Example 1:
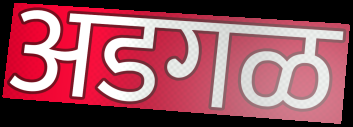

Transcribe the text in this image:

अडगळ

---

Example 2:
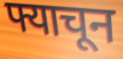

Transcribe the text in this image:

फ्याचून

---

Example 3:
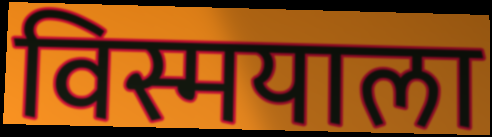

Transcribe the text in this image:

विस्मयाला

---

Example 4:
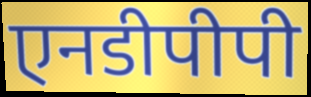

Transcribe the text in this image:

एनडीपीपी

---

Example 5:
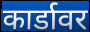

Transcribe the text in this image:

कार्डावर